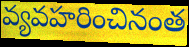
వ్యవహరించినంత